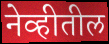
नेव्हीतील